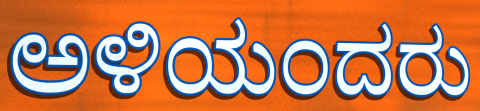
ಅಳಿಯಂದರು